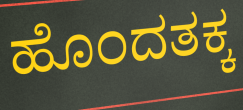
ಹೊಂದತಕ್ಕ